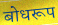
बोधरूप